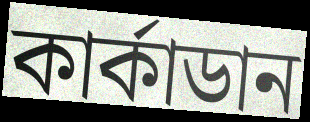
কাৰ্কাডান